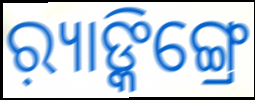
ର଼୍ୟାଙ୍କିଙ୍ଗ୍ରେ